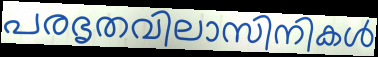
പരഭൃതവിലാസിനികൾ